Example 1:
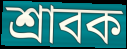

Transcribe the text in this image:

শ্রাবক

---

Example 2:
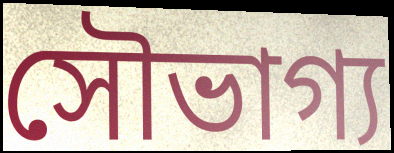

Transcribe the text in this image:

সৌভাগ্য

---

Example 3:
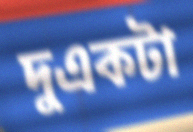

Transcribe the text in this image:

দুএকটা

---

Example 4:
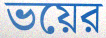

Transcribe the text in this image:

ভয়ের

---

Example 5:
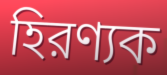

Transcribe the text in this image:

হিরণ্যক